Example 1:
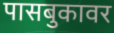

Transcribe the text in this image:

पासबुकावर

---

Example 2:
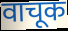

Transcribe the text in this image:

वाचूक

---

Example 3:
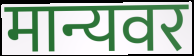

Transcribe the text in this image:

मान्यवर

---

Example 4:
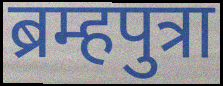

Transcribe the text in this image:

ब्रम्हपुत्रा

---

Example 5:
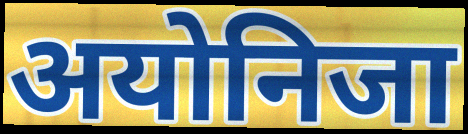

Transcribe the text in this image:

अयोनिजा